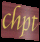
chpt